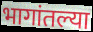
भागांतल्या